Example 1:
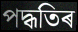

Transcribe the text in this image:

পদ্ধতিৰ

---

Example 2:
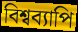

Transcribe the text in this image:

বিশ্বব্যাপি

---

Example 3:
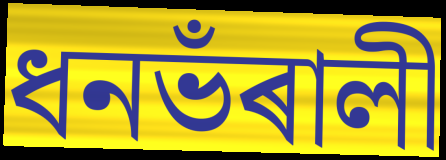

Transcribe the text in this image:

ধনভঁৰালী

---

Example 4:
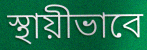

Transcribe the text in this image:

স্থায়ীভাবে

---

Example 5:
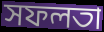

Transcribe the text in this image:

সফলতা